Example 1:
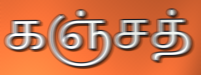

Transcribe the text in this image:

கஞ்சத்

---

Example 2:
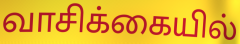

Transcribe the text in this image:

வாசிக்கையில்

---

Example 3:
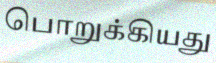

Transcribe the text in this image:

பொறுக்கியது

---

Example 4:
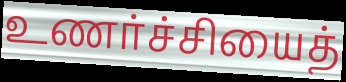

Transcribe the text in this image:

உணர்ச்சியைத்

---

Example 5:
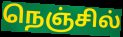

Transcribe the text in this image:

நெஞ்சில்